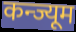
कन्ज्यूम